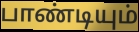
பாண்டியும்